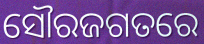
ସୌରଜଗତରେ